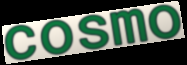
cosmo